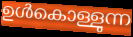
ഉൾകൊള്ളുന്ന